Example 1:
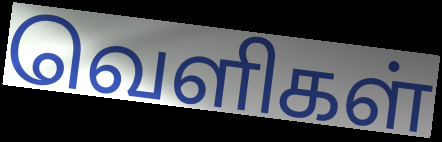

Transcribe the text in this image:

வெளிகள்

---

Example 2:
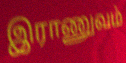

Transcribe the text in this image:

இராணுவம்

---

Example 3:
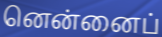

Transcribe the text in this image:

னென்னைப்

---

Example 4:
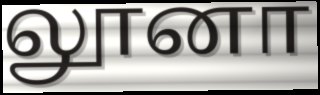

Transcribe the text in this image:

லூனா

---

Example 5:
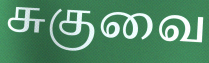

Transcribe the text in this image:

சுகுவை